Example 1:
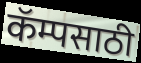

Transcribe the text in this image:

कॅम्पसाठी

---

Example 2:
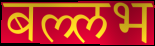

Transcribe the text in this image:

बल्लभ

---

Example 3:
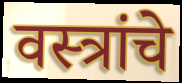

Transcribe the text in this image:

वस्त्रांचे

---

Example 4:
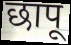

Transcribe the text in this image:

छापू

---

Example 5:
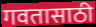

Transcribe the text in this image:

गवतासाठी